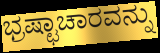
ಭ್ರಷ್ಟಾಚಾರವನ್ನು